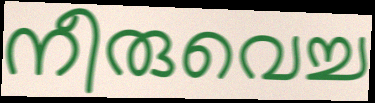
നീരുവെച്ച